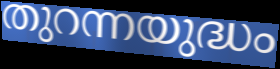
തുറന്നയുദ്ധം